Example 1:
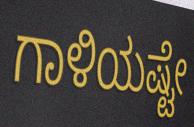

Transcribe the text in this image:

ಗಾಳಿಯಷ್ಟೇ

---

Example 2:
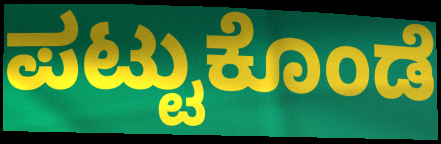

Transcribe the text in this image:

ಪಟ್ಟುಕೊಂಡೆ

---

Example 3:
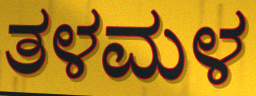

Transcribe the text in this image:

ತಳಮಳ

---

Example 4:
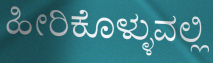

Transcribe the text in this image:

ಹೀರಿಕೊಳ್ಳುವಲ್ಲಿ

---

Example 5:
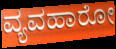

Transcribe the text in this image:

ವ್ಯವಹಾರೋ